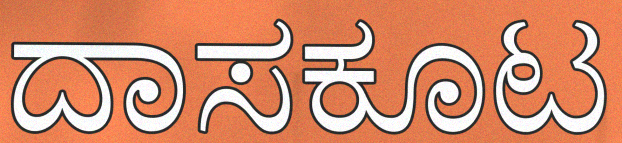
ದಾಸಕೂಟ